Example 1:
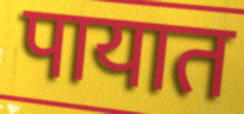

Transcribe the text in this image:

पायात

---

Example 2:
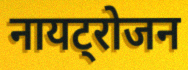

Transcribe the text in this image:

नायट्रोजन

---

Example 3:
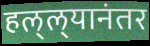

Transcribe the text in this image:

हल्ल्यानंतर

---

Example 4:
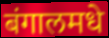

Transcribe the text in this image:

बंगालमधे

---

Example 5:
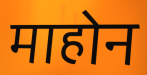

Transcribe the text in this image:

माहोन